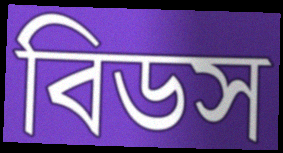
বিডস